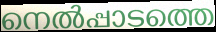
നെൽപ്പാടത്തെ